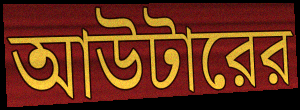
আউটারের